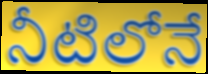
నీటిలోనే